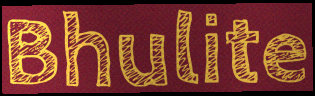
Bhulite